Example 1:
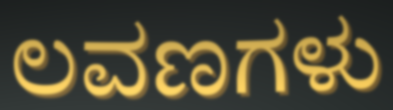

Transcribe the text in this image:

ಲವಣಗಳು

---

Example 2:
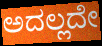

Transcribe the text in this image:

ಅದಲ್ಲದೇ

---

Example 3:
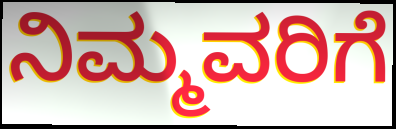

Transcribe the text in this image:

ನಿಮ್ಮವರಿಗೆ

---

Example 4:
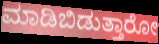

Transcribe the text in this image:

ಮಾಡಿಬಿಡುತ್ತಾರೋ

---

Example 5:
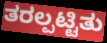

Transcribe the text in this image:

ತರಲ್ಪಟ್ಟಿತು